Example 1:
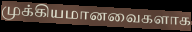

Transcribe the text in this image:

முக்கியமானவைகளாக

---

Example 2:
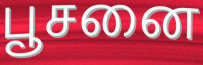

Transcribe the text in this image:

பூசனை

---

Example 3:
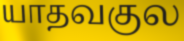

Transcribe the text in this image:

யாதவகுல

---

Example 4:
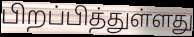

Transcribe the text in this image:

பிறப்பித்துள்ளது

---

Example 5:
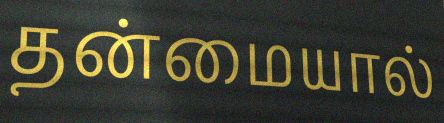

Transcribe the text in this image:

தன்மையால்